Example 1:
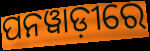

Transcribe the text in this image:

ପନୱାଡ଼ୀରେ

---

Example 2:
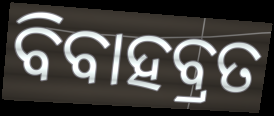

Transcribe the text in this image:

ବିବାହବ୍ରତ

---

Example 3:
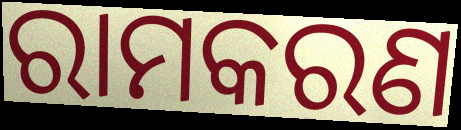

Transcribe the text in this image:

ରାମକରଣ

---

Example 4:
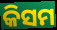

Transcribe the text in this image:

କିସମ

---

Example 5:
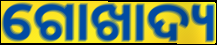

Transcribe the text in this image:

ଗୋଖାଦ୍ୟ